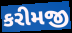
કરીમજી